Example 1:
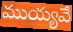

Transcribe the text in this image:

ముయ్యవే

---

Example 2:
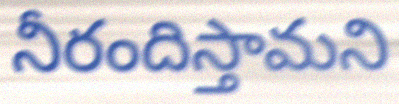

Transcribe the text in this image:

నీరందిస్తామని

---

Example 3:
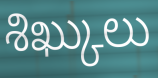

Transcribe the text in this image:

శిఖ్కులు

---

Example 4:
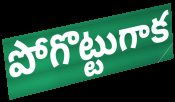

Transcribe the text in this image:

పోగొట్టుగాక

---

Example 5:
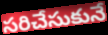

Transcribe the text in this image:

సరిచేసుకునే